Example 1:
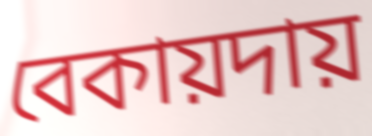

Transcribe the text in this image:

বেকায়দায়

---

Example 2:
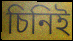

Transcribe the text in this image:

চিনিই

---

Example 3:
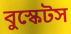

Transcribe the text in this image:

বুস্কেটস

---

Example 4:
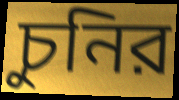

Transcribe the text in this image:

চুনির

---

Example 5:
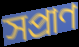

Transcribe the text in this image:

সপ্রাণ